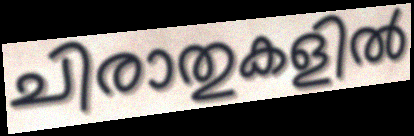
ചിരാതുകളിൽ